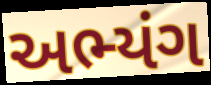
અભ્યંગ